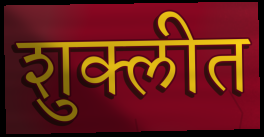
शुक्लीत